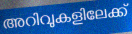
അറിവുകളിലേക്ക്